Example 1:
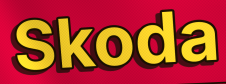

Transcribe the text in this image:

Skoda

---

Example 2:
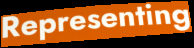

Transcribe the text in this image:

Representing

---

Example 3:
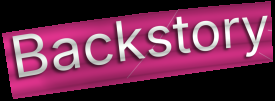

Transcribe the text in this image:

Backstory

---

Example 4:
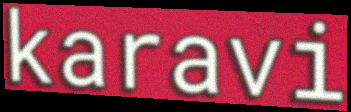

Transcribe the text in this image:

karavi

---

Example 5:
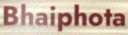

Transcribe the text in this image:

Bhaiphota